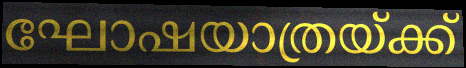
ഘോഷയാത്രയ്ക്ക്